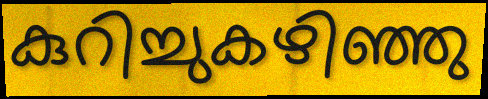
കുറിച്ചുകഴിഞ്ഞു